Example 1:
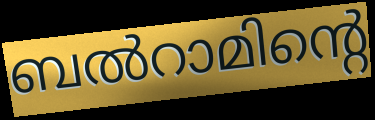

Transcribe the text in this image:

ബൽറാമിന്റെ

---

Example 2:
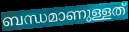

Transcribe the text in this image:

ബന്ധമാണുള്ളത്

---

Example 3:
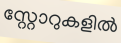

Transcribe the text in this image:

സ്റ്റോറുകളിൽ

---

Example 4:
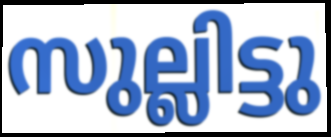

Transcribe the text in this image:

സുല്ലിട്ടു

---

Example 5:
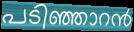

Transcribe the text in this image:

പടിഞ്ഞാറൻ